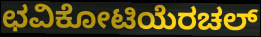
ಛವಿಕೋಟಿಯೆರಚಲ್